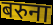
बरुना